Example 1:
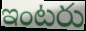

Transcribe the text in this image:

ఇంటరు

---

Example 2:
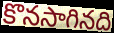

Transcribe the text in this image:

కొనసాగినది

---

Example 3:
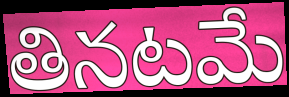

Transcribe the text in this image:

తినటమే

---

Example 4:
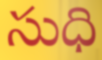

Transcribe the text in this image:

సుధి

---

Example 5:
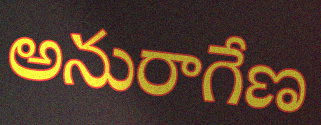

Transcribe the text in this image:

అనురాగేణ